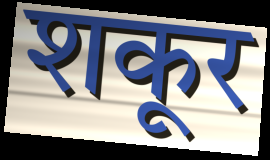
शकूर